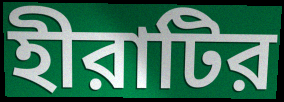
হীরাটির